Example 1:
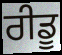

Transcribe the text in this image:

ਰੀਡੂ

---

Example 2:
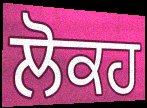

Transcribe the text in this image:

ਲੋਕਹ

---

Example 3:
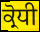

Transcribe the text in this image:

ਕ੍ਰੋਧੀ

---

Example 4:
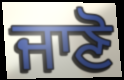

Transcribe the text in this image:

ਜਾਣੋ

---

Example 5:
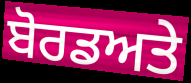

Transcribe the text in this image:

ਬੋਰਡਅਤੇ